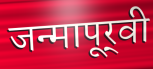
जन्मापूर्वी